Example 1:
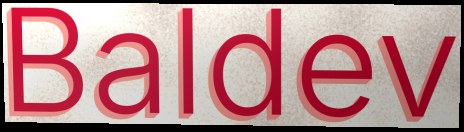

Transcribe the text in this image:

Baldev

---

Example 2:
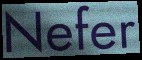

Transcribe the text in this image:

Nefer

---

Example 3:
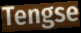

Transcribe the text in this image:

Tengse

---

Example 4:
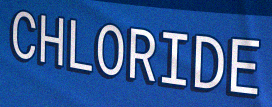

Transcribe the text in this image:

CHLORIDE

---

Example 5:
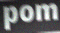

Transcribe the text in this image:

pom